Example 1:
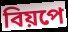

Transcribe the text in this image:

বিয়পে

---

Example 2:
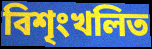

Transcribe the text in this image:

বিশৃংখলিত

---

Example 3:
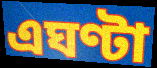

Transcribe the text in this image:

এঘণ্টা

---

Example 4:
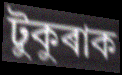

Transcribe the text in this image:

টুকুৰাক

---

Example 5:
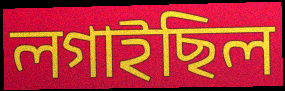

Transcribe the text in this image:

লগাইছিল